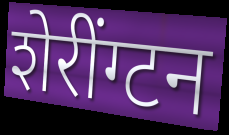
शेरींग्टन